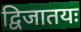
द्विजातयः